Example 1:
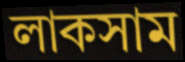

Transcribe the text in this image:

লাকসাম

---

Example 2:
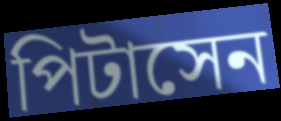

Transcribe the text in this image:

পিটাসেন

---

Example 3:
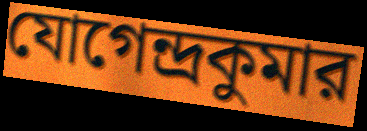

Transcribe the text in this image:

যোগেন্দ্রকুমার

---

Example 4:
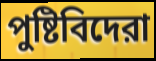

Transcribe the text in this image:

পুষ্টিবিদেরা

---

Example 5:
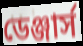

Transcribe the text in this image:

ডেঞ্জার্স